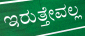
ಇರುತ್ತೇವಲ್ಲ